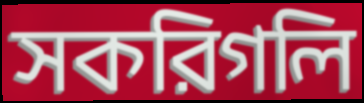
সকরিগলি